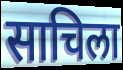
साचिला